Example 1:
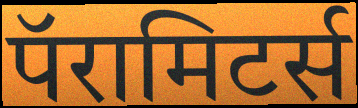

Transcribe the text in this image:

पॅरामिटर्स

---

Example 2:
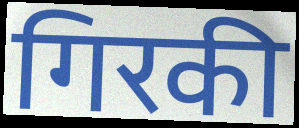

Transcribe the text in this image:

गिरकी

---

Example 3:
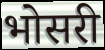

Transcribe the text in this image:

भोसरी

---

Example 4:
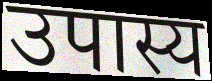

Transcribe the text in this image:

उपास्य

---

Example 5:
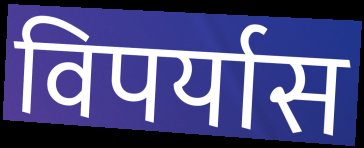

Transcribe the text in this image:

विपर्यास